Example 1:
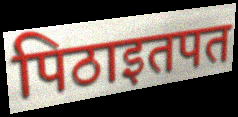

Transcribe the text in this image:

पिठाइतपत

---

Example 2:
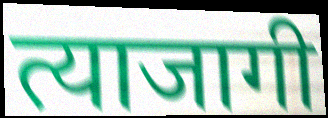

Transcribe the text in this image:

त्याजागी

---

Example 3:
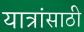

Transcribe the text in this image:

यात्रांसाठी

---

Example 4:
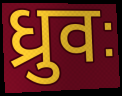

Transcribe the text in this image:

ध्रुवः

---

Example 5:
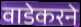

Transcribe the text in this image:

वाडेकरने